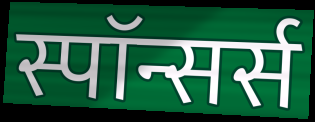
स्पॉन्सर्स